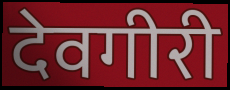
देवगीरी